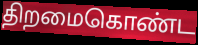
திறமைகொண்ட